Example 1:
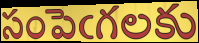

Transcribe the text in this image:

సంపెఁగలకు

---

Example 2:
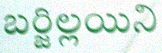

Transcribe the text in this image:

బర్జిల్లయిని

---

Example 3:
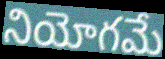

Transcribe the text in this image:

నియోగమే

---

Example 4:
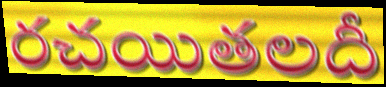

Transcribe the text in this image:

రచయితలదీ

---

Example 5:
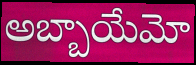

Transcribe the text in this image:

అబ్బాయేమో